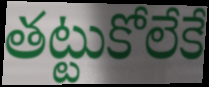
తట్టుకోలేకే